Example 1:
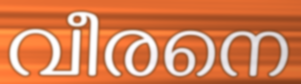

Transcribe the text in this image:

വീരനെ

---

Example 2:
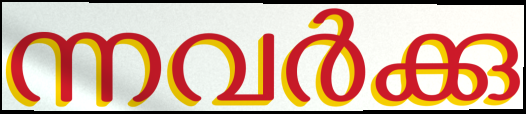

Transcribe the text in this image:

ന്നവർക്കു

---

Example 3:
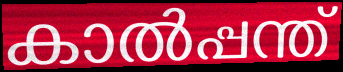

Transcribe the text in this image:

കാൽപ്പന്ത്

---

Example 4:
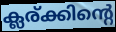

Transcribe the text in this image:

ക്ലര്ക്കിന്റെ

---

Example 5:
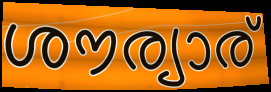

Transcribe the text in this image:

ശൗര്യാര്